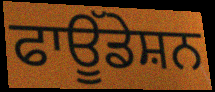
ਫਾਊੱਡੇਸ਼ਨ